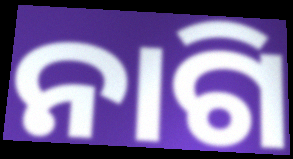
ନାଗି